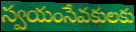
స్వయంసేవకులకు